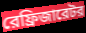
রেফ্রিজারেটর